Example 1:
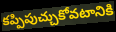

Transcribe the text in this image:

కప్పిపుచ్చుకోవటానికి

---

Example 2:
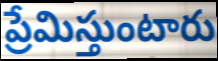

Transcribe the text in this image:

ప్రేమిస్తుంటారు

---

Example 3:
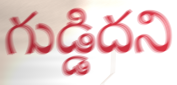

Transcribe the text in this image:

గుడ్డిదని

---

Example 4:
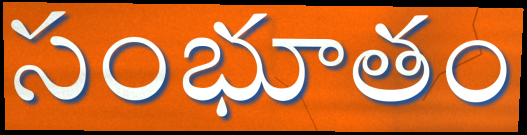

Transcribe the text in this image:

సంభూతం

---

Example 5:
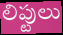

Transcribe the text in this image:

లిప్టులు